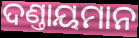
ଦଣ୍ତାୟମାନ